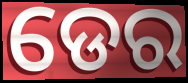
ଡେର